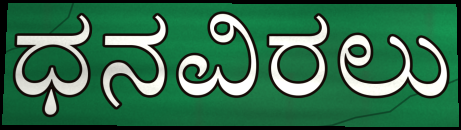
ಧನವಿರಲು